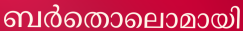
ബർതൊലൊമായി